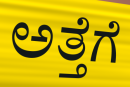
ಅತ್ತೆಗೆ